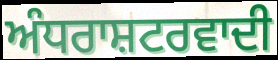
ਅੰਧਰਾਸ਼ਟਰਵਾਦੀ